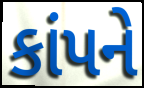
કાંપને